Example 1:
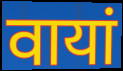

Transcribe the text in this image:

वायां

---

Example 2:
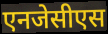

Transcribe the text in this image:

एनजेसीएस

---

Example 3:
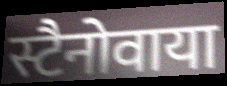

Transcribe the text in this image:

स्टैनोवाया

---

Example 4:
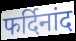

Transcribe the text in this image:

फर्दिनांद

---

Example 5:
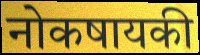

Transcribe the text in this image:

नोकषायकी